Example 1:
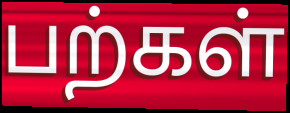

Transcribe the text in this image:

பற்கள்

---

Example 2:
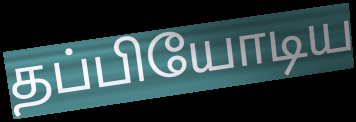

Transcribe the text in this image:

தப்பியோடிய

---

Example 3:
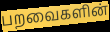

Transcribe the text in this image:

பறவைகளின்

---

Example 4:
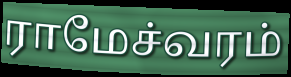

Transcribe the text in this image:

ராமேச்வரம்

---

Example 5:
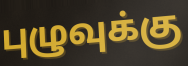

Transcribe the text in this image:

புழுவுக்கு